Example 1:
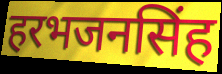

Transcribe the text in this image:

हरभजनसिंह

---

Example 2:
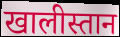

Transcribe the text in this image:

खालीस्तान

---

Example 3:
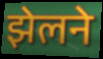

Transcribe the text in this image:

झेलने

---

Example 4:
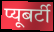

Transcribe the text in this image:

प्यूबर्टी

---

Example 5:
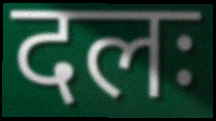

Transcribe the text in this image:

दलः